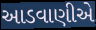
આડવાણીએ